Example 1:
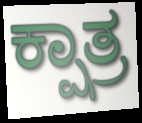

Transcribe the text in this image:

ಕ್ಷಾತ್ರ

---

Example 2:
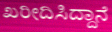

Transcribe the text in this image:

ಖರೀದಿಸಿದ್ದಾನೆ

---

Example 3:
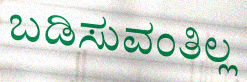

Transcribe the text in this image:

ಬಡಿಸುವಂತಿಲ್ಲ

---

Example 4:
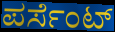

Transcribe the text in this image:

ಪರ್ಸೆಂಟ್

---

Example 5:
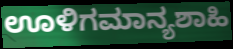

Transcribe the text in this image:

ಊಳಿಗಮಾನ್ಯಶಾಹಿ